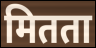
मितता